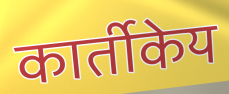
कार्तीकेय